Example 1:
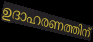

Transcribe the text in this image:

ഉദാഹരണത്തിന്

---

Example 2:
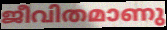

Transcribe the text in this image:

ജീവിതമാണു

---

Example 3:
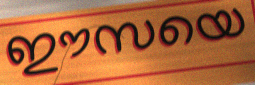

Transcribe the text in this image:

ഈസയെ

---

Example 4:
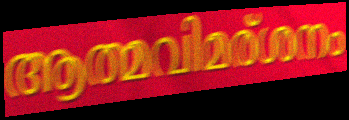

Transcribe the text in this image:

ആത്മവിമര്ശനം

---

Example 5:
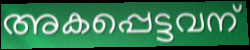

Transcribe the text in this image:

അകപ്പെട്ടവന്